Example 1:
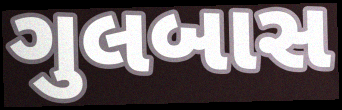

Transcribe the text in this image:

ગુલબાસ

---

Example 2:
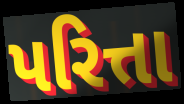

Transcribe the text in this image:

પરિત્તા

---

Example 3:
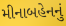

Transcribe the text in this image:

મીનાબહેનનું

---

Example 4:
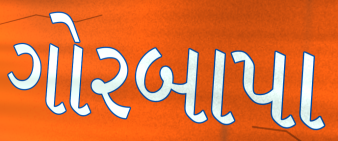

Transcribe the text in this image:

ગોરબાપા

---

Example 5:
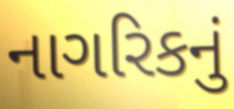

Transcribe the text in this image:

નાગરિકનું